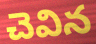
చెవిన